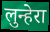
लुन्हेरा